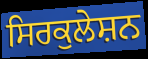
ਸਿਰਕੁਲੇਸ਼ਨ